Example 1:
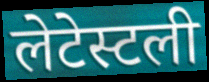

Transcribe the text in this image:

लेटेस्टली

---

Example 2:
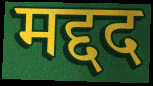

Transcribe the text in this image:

मद्दद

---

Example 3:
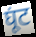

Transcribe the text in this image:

घूंट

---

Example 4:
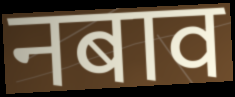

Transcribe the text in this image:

नबाव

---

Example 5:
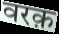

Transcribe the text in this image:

वरक़